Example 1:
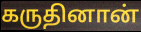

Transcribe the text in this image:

கருதினான்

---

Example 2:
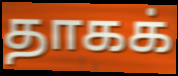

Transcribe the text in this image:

தாகக்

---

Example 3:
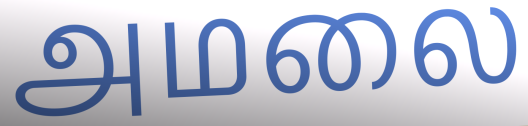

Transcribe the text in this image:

அமலை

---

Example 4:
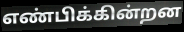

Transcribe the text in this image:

எண்பிக்கின்றன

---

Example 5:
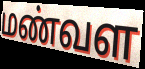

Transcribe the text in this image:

மண்வள